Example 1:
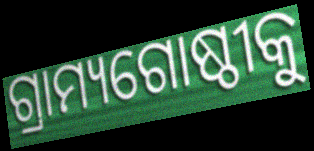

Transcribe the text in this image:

ଗ୍ରାମ୍ୟଗୋଷ୍ଠୀକୁ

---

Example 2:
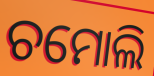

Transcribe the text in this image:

ଚମୋଲି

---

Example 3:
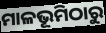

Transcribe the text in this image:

ମାଳଭୂମିଠାରୁ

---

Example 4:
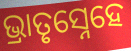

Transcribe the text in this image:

ଭ୍ରାତୃସ୍ନେହେ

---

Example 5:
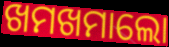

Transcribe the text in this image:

ଖମଖମାଲୋ